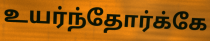
உயர்ந்தோர்க்கே